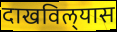
दाखविल्यास